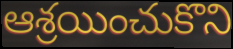
ఆశ్రయించుకొని